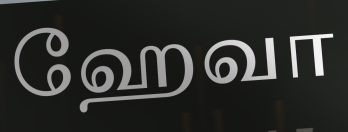
ஹேவா